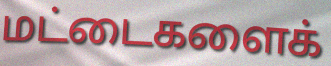
மட்டைகளைக்